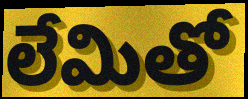
లేమితో